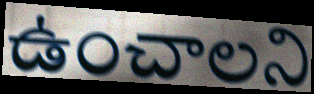
ఉంచాలని